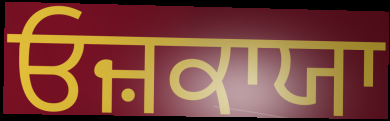
ਓਜ਼ਕਾਯਾ